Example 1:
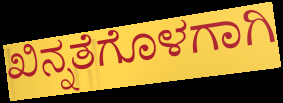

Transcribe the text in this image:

ಖಿನ್ನತೆಗೊಳಗಾಗಿ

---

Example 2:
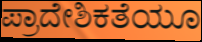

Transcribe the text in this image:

ಪ್ರಾದೇಶಿಕತೆಯೂ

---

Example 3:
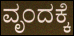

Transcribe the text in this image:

ವೃಂದಕ್ಕೆ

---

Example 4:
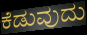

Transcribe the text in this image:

ಕೆಡುವುದು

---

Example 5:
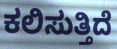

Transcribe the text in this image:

ಕಲಿಸುತ್ತಿದೆ